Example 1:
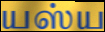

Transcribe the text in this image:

யஸ்ய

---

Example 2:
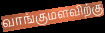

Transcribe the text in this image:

வாங்குமளவிற்கு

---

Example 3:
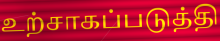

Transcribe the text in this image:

உற்சாகப்படுத்தி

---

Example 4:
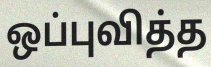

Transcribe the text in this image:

ஒப்புவித்த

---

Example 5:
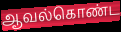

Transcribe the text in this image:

ஆவல்கொண்ட